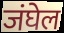
जंघेल